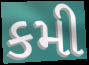
કમી